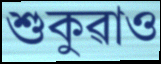
শুকুৱাও